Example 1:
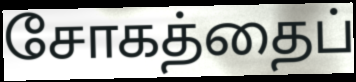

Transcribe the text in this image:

சோகத்தைப்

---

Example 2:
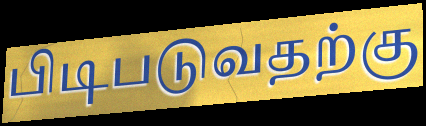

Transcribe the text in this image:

பிடிபடுவதற்கு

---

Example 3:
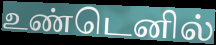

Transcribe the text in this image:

உண்டெனில்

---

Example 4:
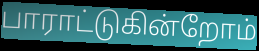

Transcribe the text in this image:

பாராட்டுகின்றோம்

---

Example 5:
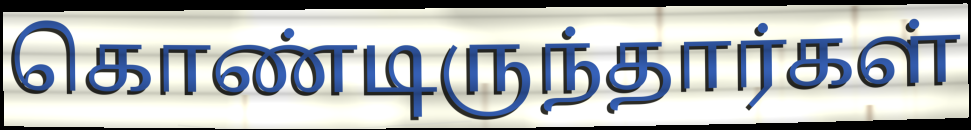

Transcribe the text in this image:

கொண்டிருந்தார்கள்